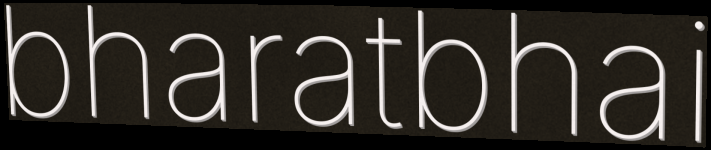
bharatbhai